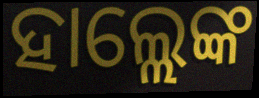
ହାଲ୍ଲେଙ୍କ